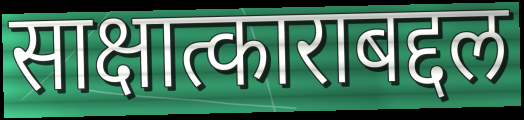
साक्षात्काराबद्दल